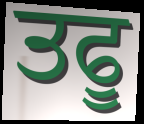
ਤਫੂ